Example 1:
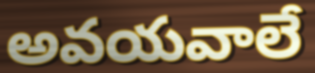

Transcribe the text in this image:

అవయవాలే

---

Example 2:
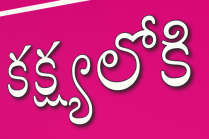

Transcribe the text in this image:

కక్ష్యలోకి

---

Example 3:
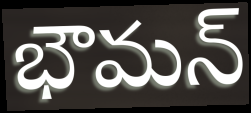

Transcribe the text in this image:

భౌమన్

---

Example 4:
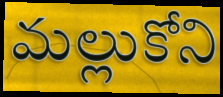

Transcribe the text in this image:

మల్లుకోని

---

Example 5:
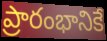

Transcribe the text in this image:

ప్రారంభానికే